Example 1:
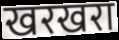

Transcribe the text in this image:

खरखरा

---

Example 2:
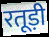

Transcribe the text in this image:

रतूड़ी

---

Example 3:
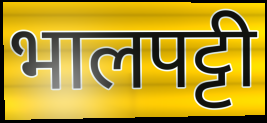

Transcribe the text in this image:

भालपट्टी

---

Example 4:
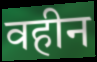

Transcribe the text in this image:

वहीन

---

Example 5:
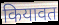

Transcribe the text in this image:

कियावत